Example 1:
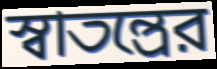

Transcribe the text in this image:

স্বাতন্ত্রের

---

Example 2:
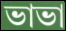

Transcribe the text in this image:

ভাভা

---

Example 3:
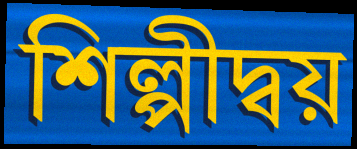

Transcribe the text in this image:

শিল্পীদ্বয়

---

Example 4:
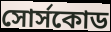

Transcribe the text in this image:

সোর্সকোড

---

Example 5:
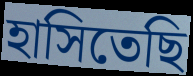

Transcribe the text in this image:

হাসিতেছি